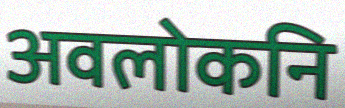
अवलोकनि